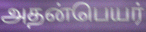
அதன்பெயர்